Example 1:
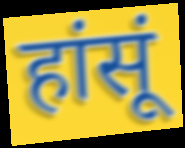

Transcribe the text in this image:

हांसूं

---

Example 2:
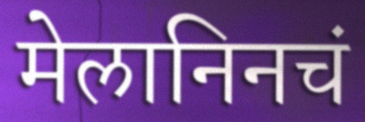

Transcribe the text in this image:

मेलानिनचं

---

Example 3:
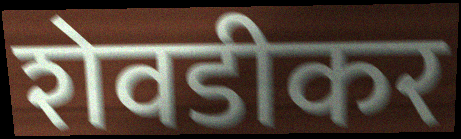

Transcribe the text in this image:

शेवडीकर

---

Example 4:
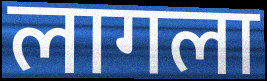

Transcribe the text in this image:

लागला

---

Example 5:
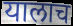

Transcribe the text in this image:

यालाच